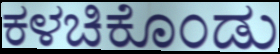
ಕಳಚಿಕೊಂಡು